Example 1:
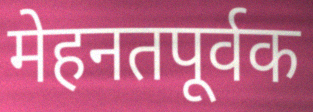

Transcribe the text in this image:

मेहनतपूर्वक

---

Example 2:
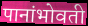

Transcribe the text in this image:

पानांभोवती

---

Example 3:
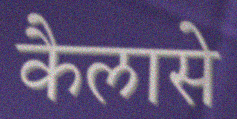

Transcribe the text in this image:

कैलासे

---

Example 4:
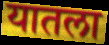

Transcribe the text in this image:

यातला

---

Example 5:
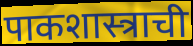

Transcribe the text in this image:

पाकशास्त्राची